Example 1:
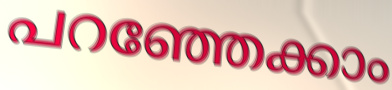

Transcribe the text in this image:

പറഞ്ഞേക്കാം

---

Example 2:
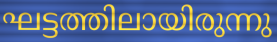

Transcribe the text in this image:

ഘട്ടത്തിലായിരുന്നു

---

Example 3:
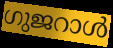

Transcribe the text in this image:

ഗുജറാൾ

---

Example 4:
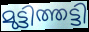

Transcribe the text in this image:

മുട്ടിത്തട്ടി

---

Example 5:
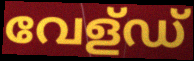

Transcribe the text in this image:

വേള്ഡ്